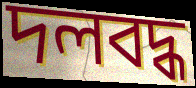
দলবদ্ধ